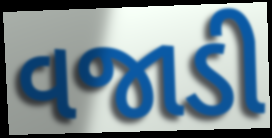
વજાડી